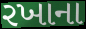
રખાના